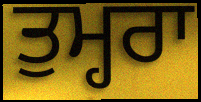
ਤੁਮ੍ਹਰਾ